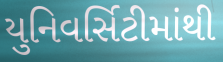
યુનિવર્સિટીમાંથી